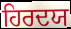
ਹਿਰਦਯ